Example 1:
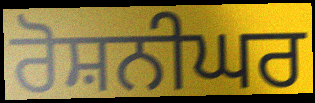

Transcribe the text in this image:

ਰੋਸ਼ਨੀਘਰ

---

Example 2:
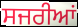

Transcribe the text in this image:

ਸਜਰੀਆਂ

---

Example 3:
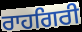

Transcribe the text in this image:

ਰਾਹਗਿਰੀ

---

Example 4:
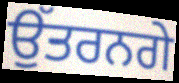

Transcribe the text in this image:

ਉੱਤਰਨਗੇ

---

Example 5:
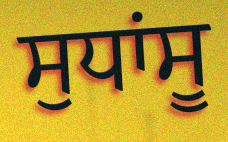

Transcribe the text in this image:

ਸੁਧਾਂਸੂ